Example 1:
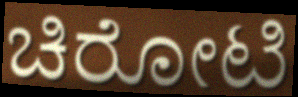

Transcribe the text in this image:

ಚಿರೋಟಿ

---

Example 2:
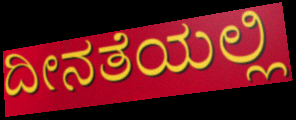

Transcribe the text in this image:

ದೀನತೆಯಲ್ಲಿ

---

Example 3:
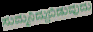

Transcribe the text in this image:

ಸುಮ್ಮನಿದ್ದುಬಿಡುವುದು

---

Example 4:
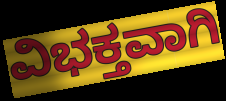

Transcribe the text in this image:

ವಿಭಕ್ತವಾಗಿ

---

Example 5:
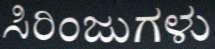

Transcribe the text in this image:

ಸಿರಿಂಜುಗಳು